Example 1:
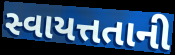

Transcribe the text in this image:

સ્વાયત્તતાની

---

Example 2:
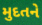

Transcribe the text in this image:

મુદતને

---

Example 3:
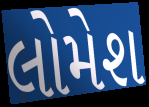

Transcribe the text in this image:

લોમેશ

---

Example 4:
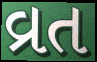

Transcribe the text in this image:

વ્રત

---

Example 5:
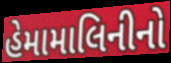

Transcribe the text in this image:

હેમામાલિનીનો